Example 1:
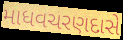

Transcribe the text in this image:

માધવચરણદાસે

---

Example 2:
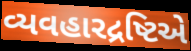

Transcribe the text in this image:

વ્યવહારદ્રષ્ટિએ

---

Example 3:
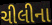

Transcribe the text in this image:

ચીલીના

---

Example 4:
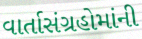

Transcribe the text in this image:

વાર્તાસંગ્રહોમાંની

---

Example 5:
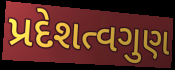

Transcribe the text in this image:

પ્રદેશત્વગુણ